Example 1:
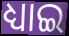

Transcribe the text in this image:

ଧ୍ୟାଇ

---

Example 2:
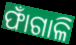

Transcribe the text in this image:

ଫାଁଗାଳି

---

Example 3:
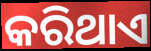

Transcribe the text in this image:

କରିଥାଏ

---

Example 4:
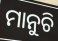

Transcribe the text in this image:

ମାନୁଚି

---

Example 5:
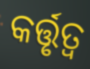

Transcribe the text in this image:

କର୍ତ୍ତୃତ୍ୱ